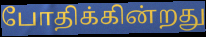
போதிக்கின்றது